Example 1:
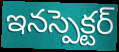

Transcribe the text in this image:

ఇనస్పెక్టర్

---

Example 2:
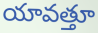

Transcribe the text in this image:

యావత్తూ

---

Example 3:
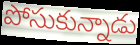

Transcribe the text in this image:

పోసుకున్నాడు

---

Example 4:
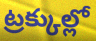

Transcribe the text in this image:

ట్రక్కుల్లో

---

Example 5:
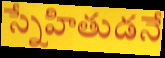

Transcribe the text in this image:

స్నేహితుడనే